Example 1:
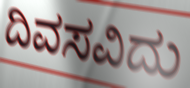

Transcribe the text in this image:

ದಿವಸವಿದು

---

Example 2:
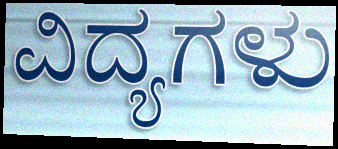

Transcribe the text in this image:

ವಿದ್ಯಗಳು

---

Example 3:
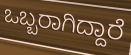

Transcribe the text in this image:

ಒಬ್ಬರಾಗಿದ್ದಾರೆ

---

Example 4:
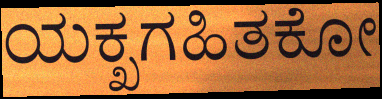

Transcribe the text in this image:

ಯಕ್ಖಗಹಿತಕೋ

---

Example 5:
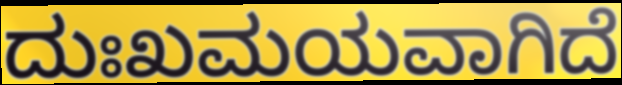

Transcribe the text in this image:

ದುಃಖಮಯವಾಗಿದೆ